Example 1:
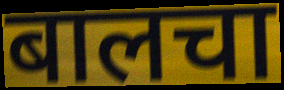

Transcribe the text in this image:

बालचा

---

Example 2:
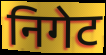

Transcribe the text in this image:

निगेट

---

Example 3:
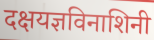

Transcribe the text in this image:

दक्षयज्ञविनाशिनी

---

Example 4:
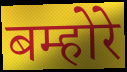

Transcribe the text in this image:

बम्होरे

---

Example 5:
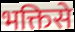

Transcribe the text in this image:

भक्तिसे